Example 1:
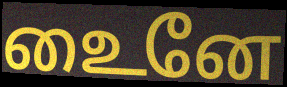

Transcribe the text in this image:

உைனே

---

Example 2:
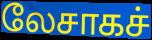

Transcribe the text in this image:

லேசாகச்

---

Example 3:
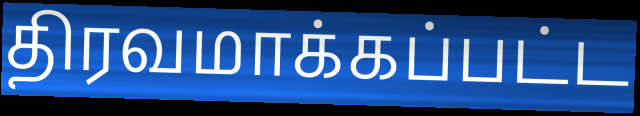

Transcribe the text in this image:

திரவமாக்கப்பட்ட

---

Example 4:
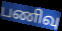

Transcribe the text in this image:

பணிவு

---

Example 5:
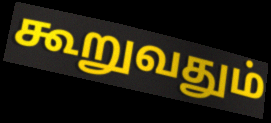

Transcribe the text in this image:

கூறுவதும்